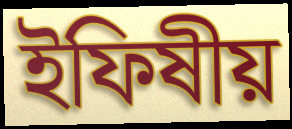
ইফিষীয়